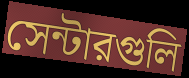
সেন্টারগুলি